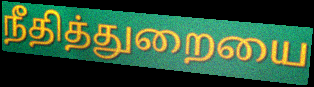
நீதித்துறையை